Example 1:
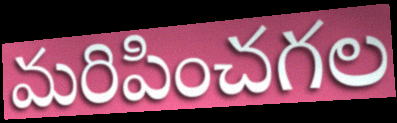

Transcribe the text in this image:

మరిపించగల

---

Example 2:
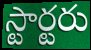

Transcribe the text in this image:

స్టార్టరు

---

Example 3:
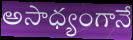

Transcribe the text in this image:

అసాధ్యంగానే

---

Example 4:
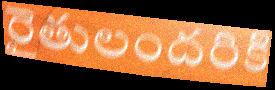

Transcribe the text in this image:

రైతులందరికి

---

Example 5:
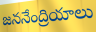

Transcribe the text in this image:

జననేంద్రియాలు